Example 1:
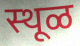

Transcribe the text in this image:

स्थूळ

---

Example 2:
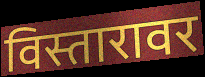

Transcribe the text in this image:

विस्तारावर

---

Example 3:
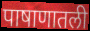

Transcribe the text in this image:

पाषाणातली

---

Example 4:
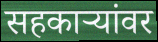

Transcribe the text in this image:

सहकार्‍यांवर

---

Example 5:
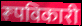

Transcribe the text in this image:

रूपविकारी